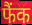
फैंक